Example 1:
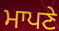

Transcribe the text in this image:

ਮਾਪਣੇ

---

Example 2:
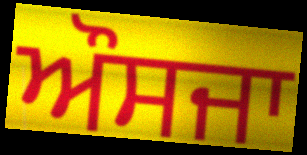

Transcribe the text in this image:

ਔਸਜਾ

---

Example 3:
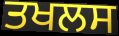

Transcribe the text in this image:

ਤਖਲਸ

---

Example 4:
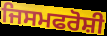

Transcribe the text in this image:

ਜਿਸਮਫਰੋਸ਼ੀ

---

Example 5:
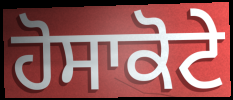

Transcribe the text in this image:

ਹੋਸਾਕੋਟੇ